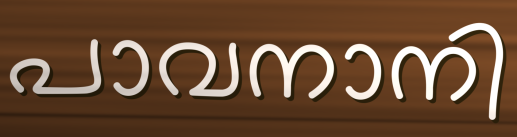
പാവനാനി